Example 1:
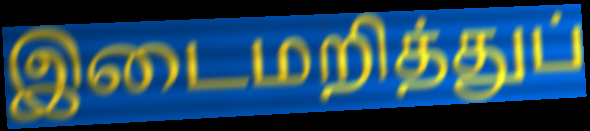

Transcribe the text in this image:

இடைமறித்துப்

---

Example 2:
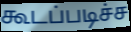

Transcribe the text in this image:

கூடப்படிச்ச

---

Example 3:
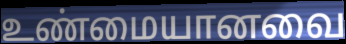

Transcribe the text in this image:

உண்மையானவை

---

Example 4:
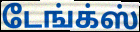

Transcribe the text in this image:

டேங்க்ஸ்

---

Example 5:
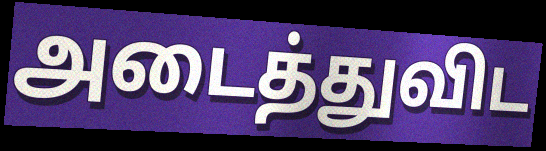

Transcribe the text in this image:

அடைத்துவிட